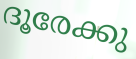
ദൂരേക്കു